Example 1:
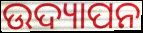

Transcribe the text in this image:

ଉଦ୍ୟାପନ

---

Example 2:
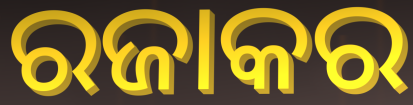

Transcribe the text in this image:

ରଜାକର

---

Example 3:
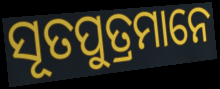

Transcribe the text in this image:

ସୂତପୁତ୍ରମାନେ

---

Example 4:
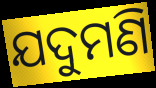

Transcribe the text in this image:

ଯଦୁମଣି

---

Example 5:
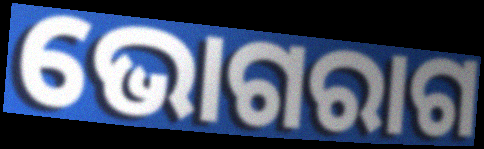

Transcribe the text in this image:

ଭୋଗରାଗ